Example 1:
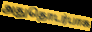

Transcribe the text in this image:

அதுதொடர்பாக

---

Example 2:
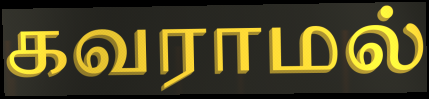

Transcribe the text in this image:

கவராமல்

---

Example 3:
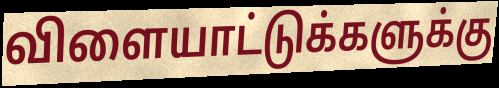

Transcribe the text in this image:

விளையாட்டுக்களுக்கு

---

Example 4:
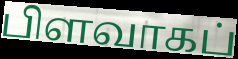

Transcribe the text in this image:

பிளவாகப்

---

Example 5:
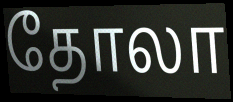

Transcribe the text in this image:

தோலா